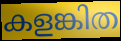
കളങ്കിത